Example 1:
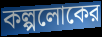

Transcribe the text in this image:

কল্পলোকের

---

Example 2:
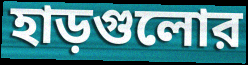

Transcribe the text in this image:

হাড়গুলোর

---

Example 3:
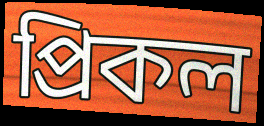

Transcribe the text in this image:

প্রিকল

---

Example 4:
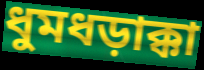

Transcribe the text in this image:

ধুমধড়াক্কা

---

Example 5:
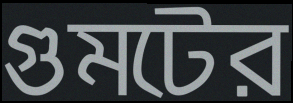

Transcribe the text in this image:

গুমটের